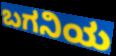
ಬಗನಿಯ